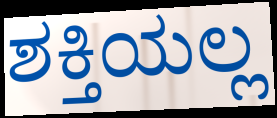
ಶಕ್ತಿಯಲ್ಲ